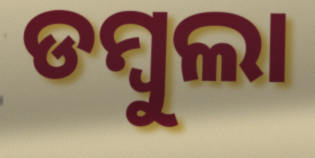
ଡମ୍ୱୁଲା